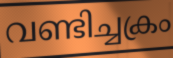
വണ്ടിച്ചക്രം